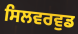
ਸਿਲਵਰਵੁਡ